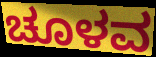
ಚೂಳವ